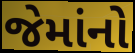
જેમાંનો